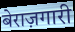
बेराज़गारी